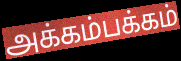
அக்கம்பக்கம்